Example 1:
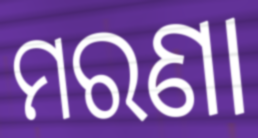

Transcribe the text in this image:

ମରଣା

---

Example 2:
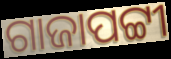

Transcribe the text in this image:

ଗାଜାପଟ୍ଟୀ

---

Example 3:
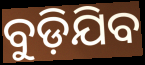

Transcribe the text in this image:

ବୁଡ଼ିଯିବ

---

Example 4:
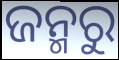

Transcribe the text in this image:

ଜନ୍ମରୁ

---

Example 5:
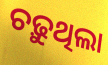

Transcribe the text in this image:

ଚଢ଼ୁଥିଲା